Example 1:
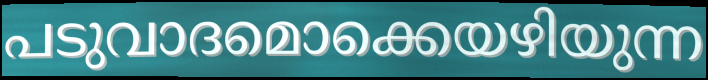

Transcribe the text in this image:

പടുവാദമൊക്കെയഴിയുന്ന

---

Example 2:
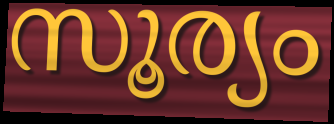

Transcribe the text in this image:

സൂര്യം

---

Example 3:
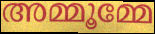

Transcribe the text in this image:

അമ്മൂമ്മേ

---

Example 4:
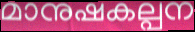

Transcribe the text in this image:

മാനുഷകല്പന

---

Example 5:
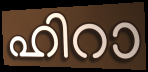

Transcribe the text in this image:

ഹിറാ